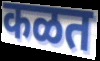
कळत